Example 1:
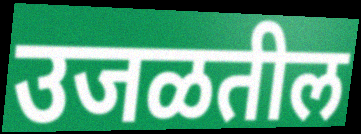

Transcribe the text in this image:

उजळतील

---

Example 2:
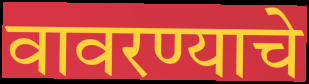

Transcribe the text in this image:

वावरण्याचे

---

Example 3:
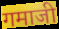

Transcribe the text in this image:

गमाजी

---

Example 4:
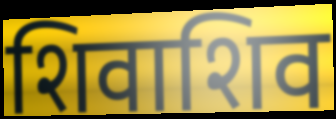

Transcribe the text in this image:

शिवाशिव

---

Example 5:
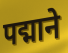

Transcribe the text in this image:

पद्माने